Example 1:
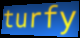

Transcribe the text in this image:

turfy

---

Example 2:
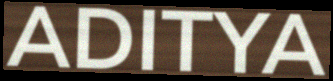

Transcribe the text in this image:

ADITYA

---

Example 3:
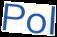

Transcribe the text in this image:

Pol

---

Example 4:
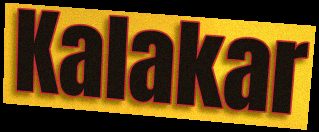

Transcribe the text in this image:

Kalakar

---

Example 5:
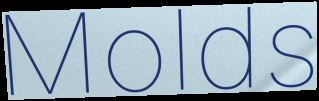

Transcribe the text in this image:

Molds